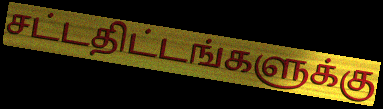
சட்டதிட்டங்களுக்கு